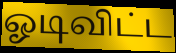
ஓடிவிட்ட